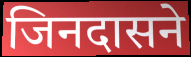
जिनदासने